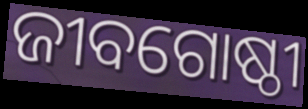
ଜୀବଗୋଷ୍ଠୀ